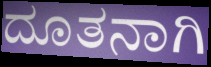
ದೂತನಾಗಿ